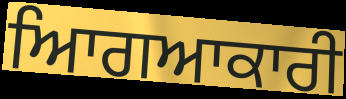
ਆਿਗਆਕਾਰੀ